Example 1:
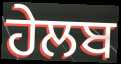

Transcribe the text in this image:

ਹੇਲਬ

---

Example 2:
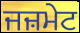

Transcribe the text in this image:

ਜਜ਼ਮੇਟ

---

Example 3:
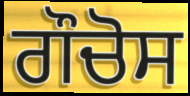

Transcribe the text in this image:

ਗੌਚੋਸ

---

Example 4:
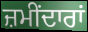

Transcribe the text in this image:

ਜ਼ਮੀਂਦਾਰਾਂ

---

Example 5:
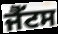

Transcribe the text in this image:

ਜੈੱਟਸ